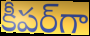
కీపర్‌గా